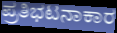
ಪ್ರತಿಭಟನಾಕಾರ